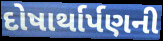
દોષાર્થાર્પણની